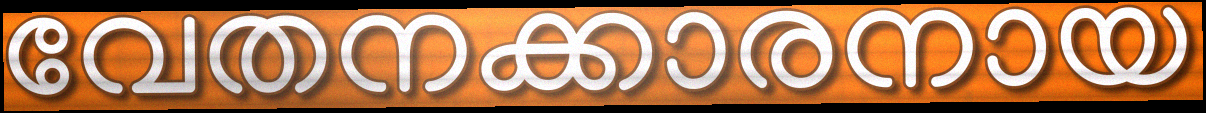
വേതനക്കാരനായ